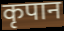
कृपान